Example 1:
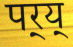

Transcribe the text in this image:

पर्य्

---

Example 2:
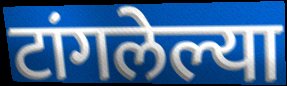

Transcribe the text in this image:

टांगलेल्या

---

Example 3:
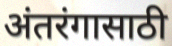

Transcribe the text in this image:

अंतरंगासाठी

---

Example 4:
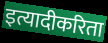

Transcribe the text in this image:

इत्यादीकरिता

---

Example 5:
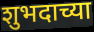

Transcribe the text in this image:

शुभदाच्या